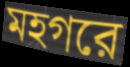
মহগরে